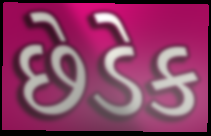
છેડેક